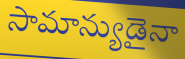
సామాన్యుడైనా